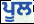
ਪੂਲ